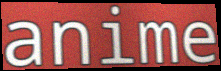
anime